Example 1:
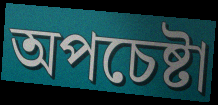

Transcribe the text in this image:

অপচেষ্টা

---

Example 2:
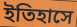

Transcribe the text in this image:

ইতিহাসে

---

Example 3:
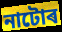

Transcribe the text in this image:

নাটোৰ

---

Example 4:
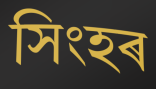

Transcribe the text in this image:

সিংহৰ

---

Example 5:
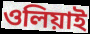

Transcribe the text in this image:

ওলিয়াই